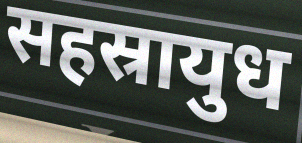
सहस्रायुध